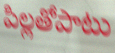
పిల్లతోపాటు